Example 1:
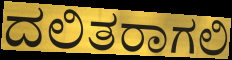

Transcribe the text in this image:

ದಲಿತರಾಗಲಿ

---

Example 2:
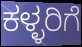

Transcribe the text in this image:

ಕಳ್ಳರಿಗೆ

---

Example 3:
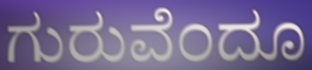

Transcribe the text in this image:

ಗುರುವೆಂದೂ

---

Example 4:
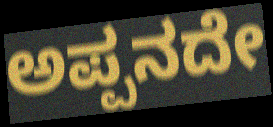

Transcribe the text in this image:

ಅಪ್ಪನದೇ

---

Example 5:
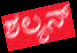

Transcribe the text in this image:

ಶಲ್ಯನ್